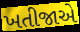
ખતીજાએ